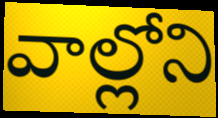
వాల్లోని